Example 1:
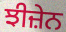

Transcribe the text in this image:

ਝੀਜ਼ੇਨ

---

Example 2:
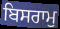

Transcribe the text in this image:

ਬਿਸਰਾਮੁ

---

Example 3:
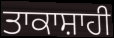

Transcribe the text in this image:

ਤਾਕਾਸ਼ਾਹੀ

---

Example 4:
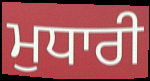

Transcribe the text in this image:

ਮੁਧਾਰੀ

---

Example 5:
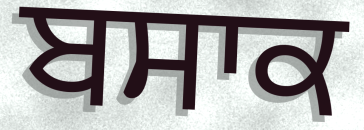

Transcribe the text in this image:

ਬਸਾਕ